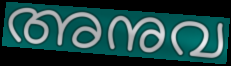
അനുവ